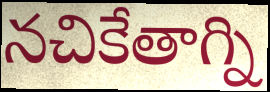
నచికేతాగ్ని